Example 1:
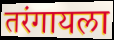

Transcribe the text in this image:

तरंगायला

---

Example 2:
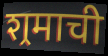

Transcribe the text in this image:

श्रमाची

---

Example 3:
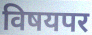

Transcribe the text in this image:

विषयपर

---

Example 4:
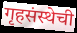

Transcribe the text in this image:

गृहसंस्थेची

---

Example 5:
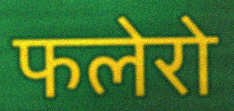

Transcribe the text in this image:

फलेरो